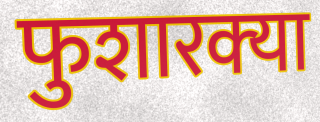
फुशारक्‍या